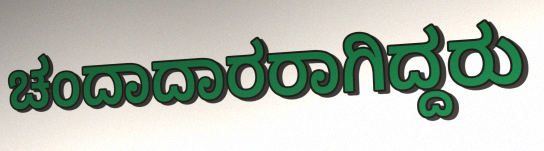
ಚಂದಾದಾರರಾಗಿದ್ದರು